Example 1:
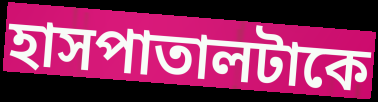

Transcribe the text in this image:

হাসপাতালটাকে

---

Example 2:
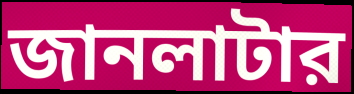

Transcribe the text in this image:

জানলাটার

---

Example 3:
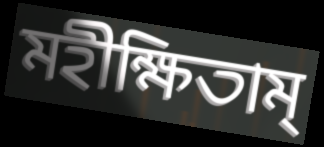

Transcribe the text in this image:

মহীক্ষিতাম্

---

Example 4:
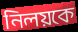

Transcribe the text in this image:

নিলয়কে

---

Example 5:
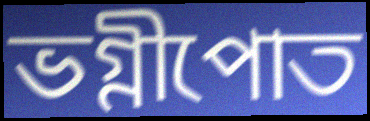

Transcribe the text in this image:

ভগ্নীপোত